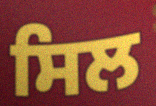
ਸਿਲ